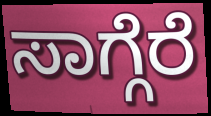
ಸಾಗ್ಗೆರೆ